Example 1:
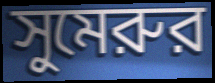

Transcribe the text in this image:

সুমেরুর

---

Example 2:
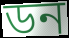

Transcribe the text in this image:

ডন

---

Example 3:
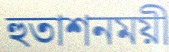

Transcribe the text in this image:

হুতাশনময়ী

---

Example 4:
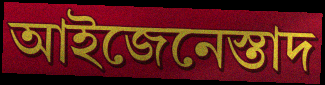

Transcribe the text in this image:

আইজেনেস্তাদ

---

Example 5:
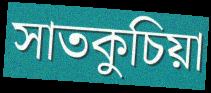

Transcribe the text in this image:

সাতকুচিয়া